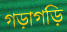
গড়াগড়ি